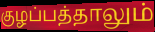
குழப்பத்தாலும்